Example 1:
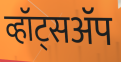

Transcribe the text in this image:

व्हॉट्सॲप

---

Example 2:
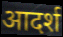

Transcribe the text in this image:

आदर्श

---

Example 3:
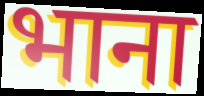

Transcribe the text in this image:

भाना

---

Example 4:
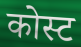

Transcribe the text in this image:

कोस्ट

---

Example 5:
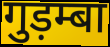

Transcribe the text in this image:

गुड़म्बा